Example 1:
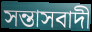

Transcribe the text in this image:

সন্তাসবাদী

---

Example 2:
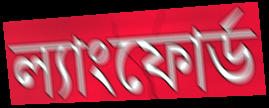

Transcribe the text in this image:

ল্যাংফোর্ড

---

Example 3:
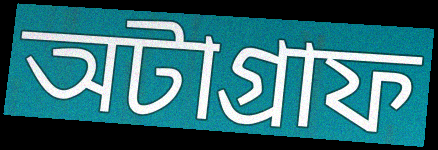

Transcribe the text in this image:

অটাগ্রাফ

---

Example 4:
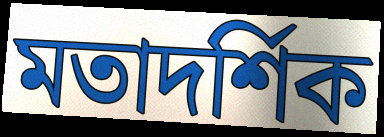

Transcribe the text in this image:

মতাদর্শিক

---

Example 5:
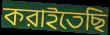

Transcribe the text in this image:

করাইতেছি